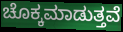
ಚೊಕ್ಕಮಾಡುತ್ತವೆ